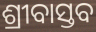
ଶ୍ରୀବାସ୍ତବ